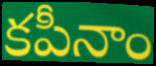
కపీనాం